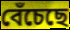
বেঁচেছে